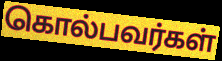
கொல்பவர்கள்